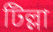
টিল্লা